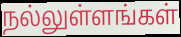
நல்லுள்ளங்கள்